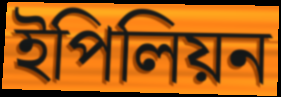
ইপিলিয়ন